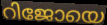
റിജോയെ